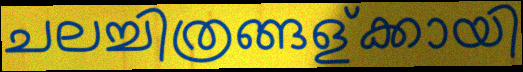
ചലച്ചിത്രങ്ങള്ക്കായി